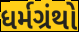
ધર્મગ્રંથો